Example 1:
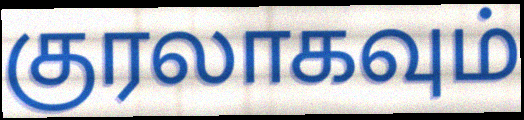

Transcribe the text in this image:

குரலாகவும்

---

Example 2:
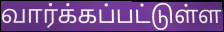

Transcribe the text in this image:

வார்க்கப்பட்டுள்ள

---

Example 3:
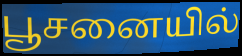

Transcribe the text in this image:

பூசனையில்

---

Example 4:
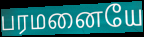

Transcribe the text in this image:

பரமனையே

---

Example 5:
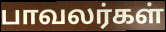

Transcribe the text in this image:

பாவலர்கள்